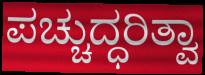
ಪಚ್ಚುದ್ಧರಿತ್ವಾ